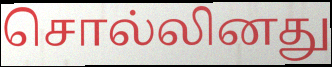
சொல்லினது